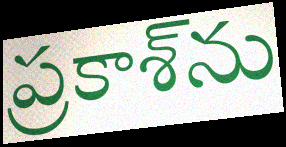
ప్రకాశ్‌ను